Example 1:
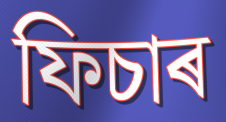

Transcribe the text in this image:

ফিচাৰ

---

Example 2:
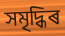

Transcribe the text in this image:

সমৃদ্ধিৰ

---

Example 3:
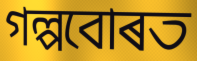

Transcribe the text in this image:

গল্পবোৰত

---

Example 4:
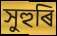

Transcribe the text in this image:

সুহুৰি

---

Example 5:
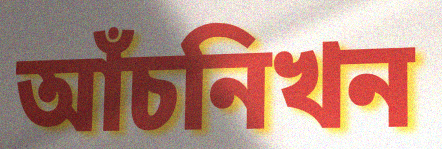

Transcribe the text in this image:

আঁচনিখন